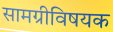
सामग्रीविषयक